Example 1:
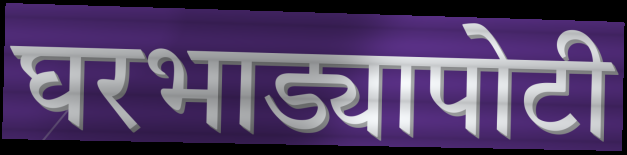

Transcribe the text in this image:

घरभाड्यापोटी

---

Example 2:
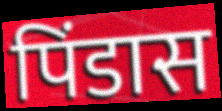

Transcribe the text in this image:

पिंडास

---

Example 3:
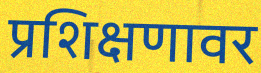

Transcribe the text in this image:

प्रशिक्षणावर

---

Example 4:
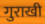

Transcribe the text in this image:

गुराखी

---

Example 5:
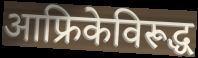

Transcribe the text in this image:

आफ्रिकेविरूद्ध